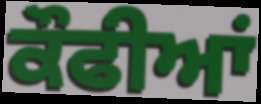
ਕੌਫੀਆਂ